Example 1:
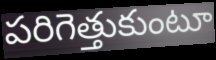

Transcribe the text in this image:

పరిగెత్తుకుంటూ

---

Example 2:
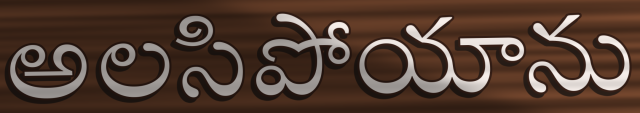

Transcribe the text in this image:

అలసిపోయాను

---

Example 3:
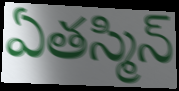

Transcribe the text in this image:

ఏతస్మిన్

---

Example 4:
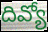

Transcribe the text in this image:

దివ్యో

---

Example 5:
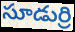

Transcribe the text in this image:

సూడుర్రి